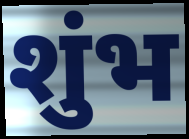
शुंभ